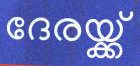
ദേരയ്ക്ക്